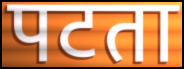
पटता